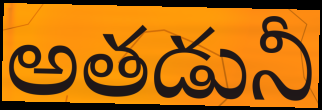
అతడునీ